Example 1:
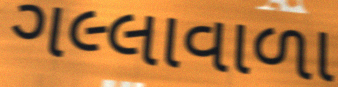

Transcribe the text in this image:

ગલ્લાવાળા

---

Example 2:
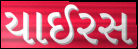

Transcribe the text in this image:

યાઈરસ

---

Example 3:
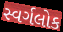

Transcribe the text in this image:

સ્વર્ગલોક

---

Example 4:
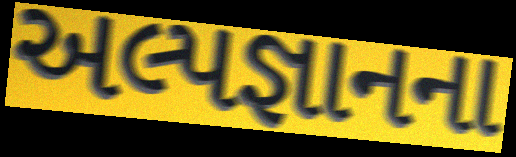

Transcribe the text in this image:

અલ્પજ્ઞાનના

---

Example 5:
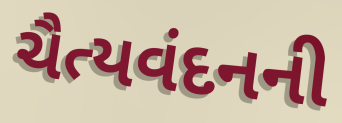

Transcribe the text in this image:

ચૈત્યવંદનની